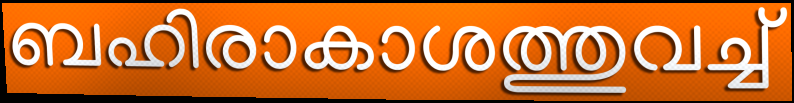
ബഹിരാകാശത്തുവച്ച്